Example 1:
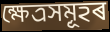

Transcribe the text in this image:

ক্ষেত্ৰসমূহৰ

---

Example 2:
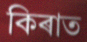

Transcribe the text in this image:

কিৰাত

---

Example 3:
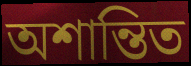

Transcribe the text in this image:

অশান্তিত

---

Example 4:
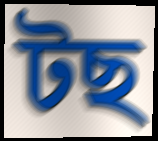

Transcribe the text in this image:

টছ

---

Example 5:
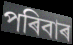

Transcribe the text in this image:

পৰিবাৰ